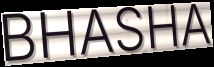
BHASHA